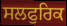
ਸਲਫੁਰਿਕ